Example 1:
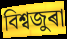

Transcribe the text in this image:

বিশ্বজুৰা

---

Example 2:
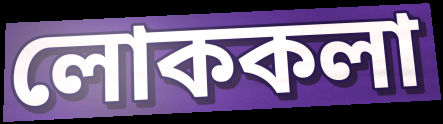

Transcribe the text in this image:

লোককলা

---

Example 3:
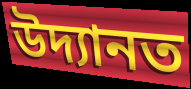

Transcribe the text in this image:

উদ্যানত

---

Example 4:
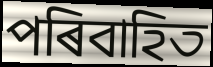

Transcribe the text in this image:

পৰিবাহিত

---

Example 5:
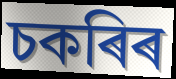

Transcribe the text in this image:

চকৰিৰ